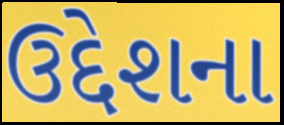
ઉદ્દેશના